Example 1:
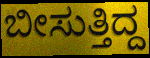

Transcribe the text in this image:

ಬೀಸುತ್ತಿದ್ದ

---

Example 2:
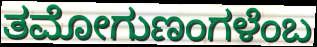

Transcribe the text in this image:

ತಮೋಗುಣಂಗಳೆಂಬ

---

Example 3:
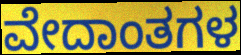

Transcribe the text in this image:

ವೇದಾಂತಗಳ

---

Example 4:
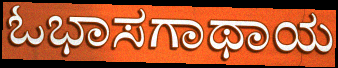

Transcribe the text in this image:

ಓಭಾಸಗಾಥಾಯ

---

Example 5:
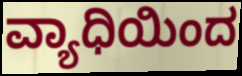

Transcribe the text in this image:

ವ್ಯಾಧಿಯಿಂದ